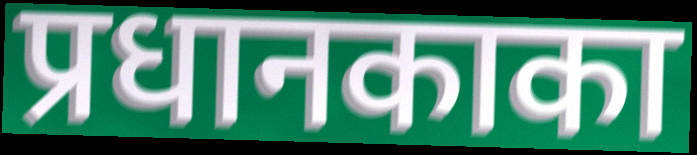
प्रधानकाका